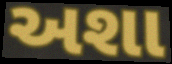
અશા